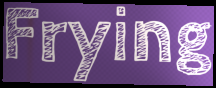
Frying